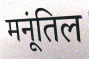
मनूंतिल